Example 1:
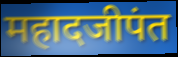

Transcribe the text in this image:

महादजीपंत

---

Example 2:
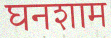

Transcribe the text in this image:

घनशाम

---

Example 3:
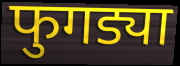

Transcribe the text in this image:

फुगड्या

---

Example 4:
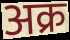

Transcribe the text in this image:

अक्र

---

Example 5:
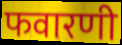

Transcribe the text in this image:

फवारणी